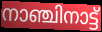
നാഞ്ചിനാട്ട്